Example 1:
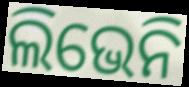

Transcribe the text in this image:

ଲିଭେନି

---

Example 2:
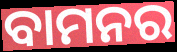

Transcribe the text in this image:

ବାମନର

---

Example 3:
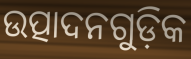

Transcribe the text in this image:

ଉତ୍ପାଦନଗୁଡ଼ିକ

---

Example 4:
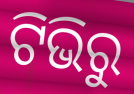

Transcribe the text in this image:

ଟିଭିରୁ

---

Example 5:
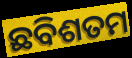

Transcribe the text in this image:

ଛବିଶତମ